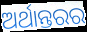
ଅର୍ଥାନ୍ତରର